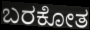
ಬರಕೋತ